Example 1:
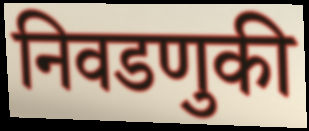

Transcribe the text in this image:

निवडणुकी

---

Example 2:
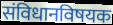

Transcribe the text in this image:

संविधानविषयक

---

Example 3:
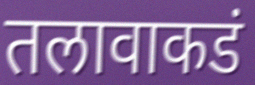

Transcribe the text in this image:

तलावाकडं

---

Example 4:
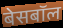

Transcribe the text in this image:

बेसबॉल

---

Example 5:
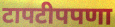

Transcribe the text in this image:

टापटीपपणा